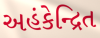
અહંકેન્દ્રિત